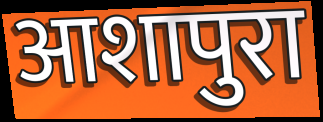
आशापुरा